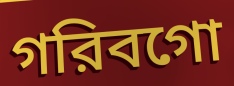
গরিবগো